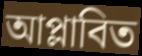
আপ্লাবিত